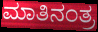
ಮಾತಿನಂತ್ರ